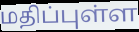
மதிப்புள்ள